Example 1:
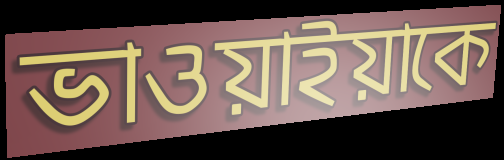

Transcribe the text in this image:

ভাওয়াইয়াকে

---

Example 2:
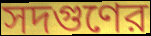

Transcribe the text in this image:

সদগুণের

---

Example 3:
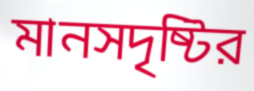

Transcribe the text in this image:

মানসদৃষ্টির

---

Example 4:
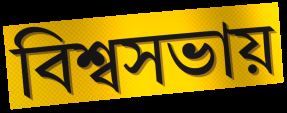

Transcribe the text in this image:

বিশ্বসভায়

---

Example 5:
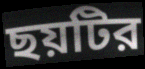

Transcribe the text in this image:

ছয়টির